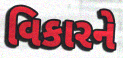
વિકારને